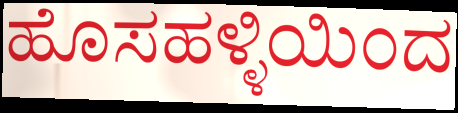
ಹೊಸಹಳ್ಳಿಯಿಂದ